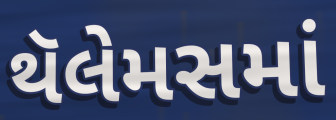
થૅલેમસમાં